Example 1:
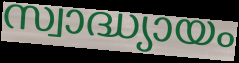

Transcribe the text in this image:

സ്വാദ്ധ്യായം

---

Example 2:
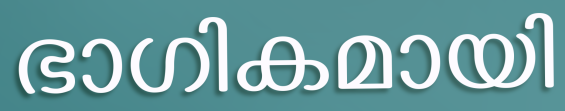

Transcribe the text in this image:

ഭാഗികമായി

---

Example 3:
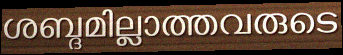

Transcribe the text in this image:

ശബ്ദമില്ലാത്തവരുടെ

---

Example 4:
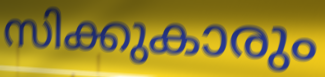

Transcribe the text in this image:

സിക്കുകാരും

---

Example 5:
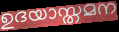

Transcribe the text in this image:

ഉദയാസ്തമന